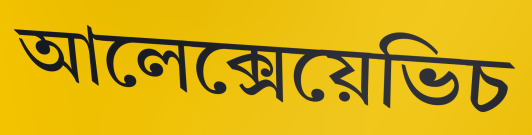
আলেক্সেয়েভিচ